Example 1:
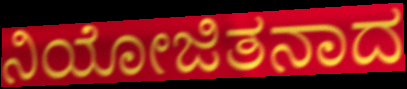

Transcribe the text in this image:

ನಿಯೋಜಿತನಾದ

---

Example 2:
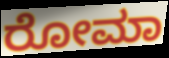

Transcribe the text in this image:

ರೋಮಾ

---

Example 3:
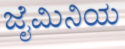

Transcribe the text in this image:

ಜೈಮಿನಿಯ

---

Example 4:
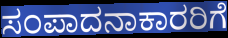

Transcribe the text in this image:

ಸಂಪಾದನಾಕಾರರಿಗೆ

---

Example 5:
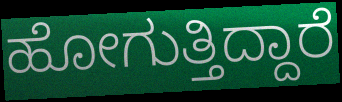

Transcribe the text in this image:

ಹೋಗುತ್ತಿದ್ದಾರೆ